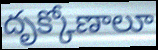
దృక్కోణాలూ